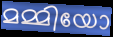
മമ്മിയോ